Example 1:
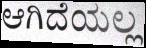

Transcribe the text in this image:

ಆಗಿದೆಯಲ್ಲ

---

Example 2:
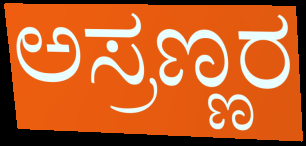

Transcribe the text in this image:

ಅಸ್ರಣ್ಣರ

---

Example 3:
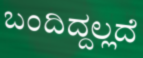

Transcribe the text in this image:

ಬಂದಿದ್ದಲ್ಲದೆ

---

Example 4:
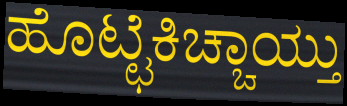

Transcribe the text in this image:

ಹೊಟ್ಟೆಕಿಚ್ಚಾಯ್ತು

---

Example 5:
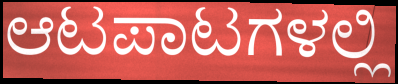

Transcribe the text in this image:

ಆಟಪಾಟಗಳಲ್ಲಿ